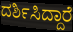
ದರ್ಶಿಸಿದ್ದಾರೆ